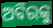
ଅବିରକୁ